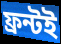
ফ্রন্টই